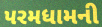
પરમધામની